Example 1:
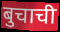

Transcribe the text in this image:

बुचाची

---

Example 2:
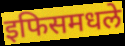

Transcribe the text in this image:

इफिसमधले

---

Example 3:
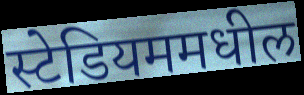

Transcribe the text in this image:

स्टेडियममधील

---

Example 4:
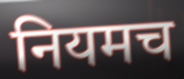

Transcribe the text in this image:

नियमच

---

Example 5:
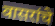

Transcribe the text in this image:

वासरांचे